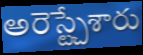
అరెస్ట్చేశారు